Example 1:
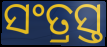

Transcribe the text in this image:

ସଂତ୍ରସ୍ତ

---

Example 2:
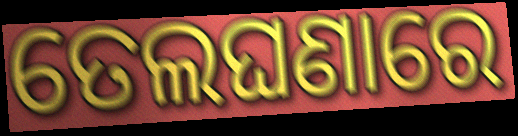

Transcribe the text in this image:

ତେଲଘଣାରେ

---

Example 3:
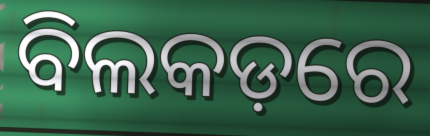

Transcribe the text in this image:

ବିଲକଡ଼ରେ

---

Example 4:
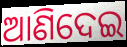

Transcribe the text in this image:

ଆଣିଦେଇ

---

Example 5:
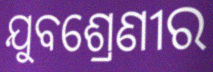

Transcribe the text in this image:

ଯୁବଶ୍ରେଣୀର